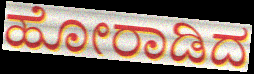
ಹೋರಾಡಿದ